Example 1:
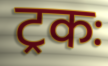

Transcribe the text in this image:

ट्रकः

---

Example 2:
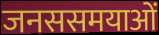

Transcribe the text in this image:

जनससमयाओं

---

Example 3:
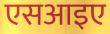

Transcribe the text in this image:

एसआइए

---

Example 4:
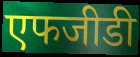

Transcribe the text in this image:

एफजीडी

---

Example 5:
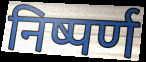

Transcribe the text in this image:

निष्पर्ण